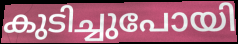
കുടിച്ചുപോയി